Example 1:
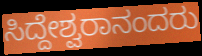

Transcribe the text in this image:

ಸಿದ್ದೇಶ್ವರಾನಂದರು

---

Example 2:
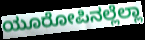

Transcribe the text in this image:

ಯೂರೋಪಿನಲ್ಲೆಲ್ಲಾ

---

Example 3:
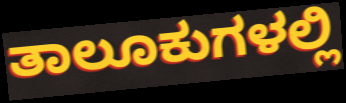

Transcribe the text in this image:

ತಾಲೂಕುಗಳಲ್ಲಿ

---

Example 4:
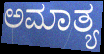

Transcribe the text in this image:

ಅಮಾತ್ಯ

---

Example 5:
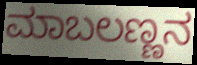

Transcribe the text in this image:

ಮಾಬಲಣ್ಣನ